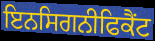
ਇਨਸਿਗਨੀਫਿਕੈਂਟ